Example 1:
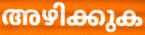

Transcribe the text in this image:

അഴിക്കുക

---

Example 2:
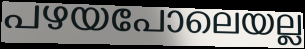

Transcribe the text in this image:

പഴയപോലെയല്ല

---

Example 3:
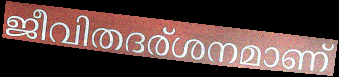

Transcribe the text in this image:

ജീവിതദര്ശനമാണ്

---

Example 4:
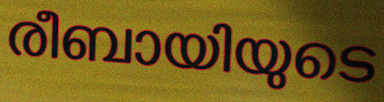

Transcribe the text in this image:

രീബായിയുടെ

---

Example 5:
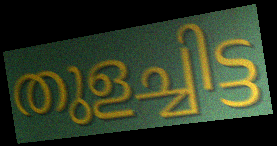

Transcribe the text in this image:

തുളച്ചിട്ട